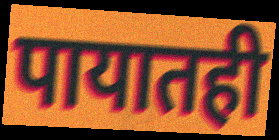
पायातही